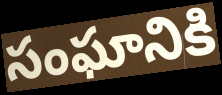
సంఘానికి